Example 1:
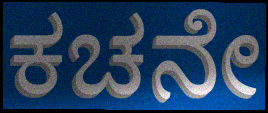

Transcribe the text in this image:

ಕಚನೇ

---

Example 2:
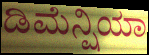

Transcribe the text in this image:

ಡಿಮೆನ್ಷಿಯಾ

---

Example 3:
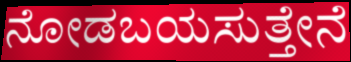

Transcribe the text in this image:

ನೋಡಬಯಸುತ್ತೇನೆ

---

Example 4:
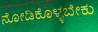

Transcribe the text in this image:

ನೋಡಿಕೊಳ್ಳಬೇಕು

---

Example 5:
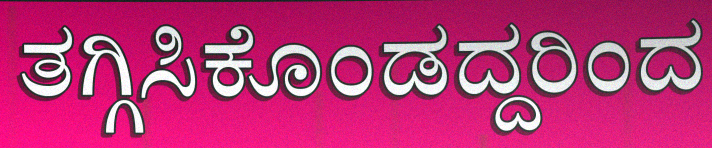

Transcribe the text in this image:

ತಗ್ಗಿಸಿಕೊಂಡದ್ದರಿಂದ